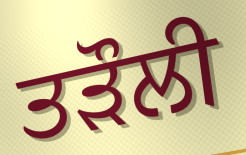
ਤੜੌਲੀ